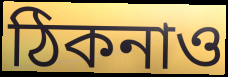
ঠিকনাও